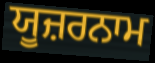
ਯੂਜ਼ਰਨਾਮ